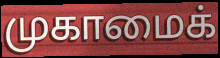
முகாமைக்